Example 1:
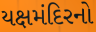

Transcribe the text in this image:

યક્ષમંદિરનો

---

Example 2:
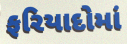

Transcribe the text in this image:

ફરિયાદોમાં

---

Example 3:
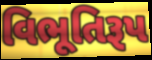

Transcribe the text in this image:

વિભૂતિરૂપ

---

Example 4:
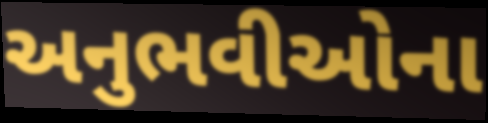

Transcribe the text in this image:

અનુભવીઓના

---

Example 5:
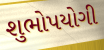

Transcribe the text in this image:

શુભોપયોગી